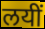
लयीं